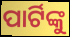
ପାର୍ଟିଙ୍କୁ